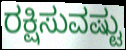
ರಕ್ಷಿಸುವಷ್ಟು